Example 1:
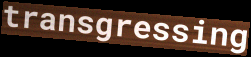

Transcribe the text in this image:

transgressing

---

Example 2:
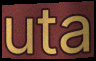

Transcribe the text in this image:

uta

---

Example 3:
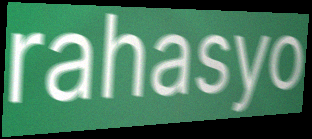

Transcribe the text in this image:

rahasyo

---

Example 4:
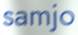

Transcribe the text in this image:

samjo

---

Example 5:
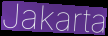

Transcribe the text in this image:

Jakarta